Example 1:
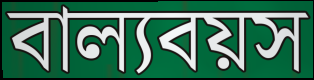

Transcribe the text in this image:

বাল্যবয়স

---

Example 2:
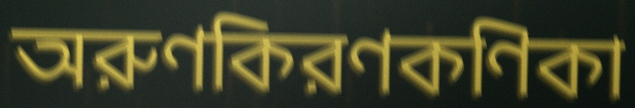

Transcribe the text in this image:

অরুণকিরণকণিকা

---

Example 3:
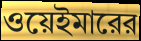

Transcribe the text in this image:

ওয়েইমারের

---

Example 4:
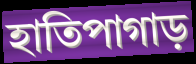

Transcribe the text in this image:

হাতিপাগাড়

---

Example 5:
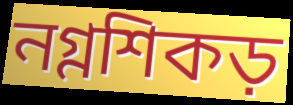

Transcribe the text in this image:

নগ্নশিকড়